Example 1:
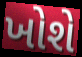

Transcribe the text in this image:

ખોશે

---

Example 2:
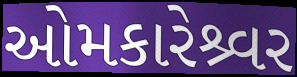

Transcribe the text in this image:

ઓમકારેશ્ર્વર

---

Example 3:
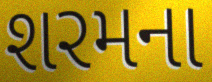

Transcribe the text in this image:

શરમના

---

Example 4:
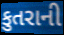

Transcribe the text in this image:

કુતરાની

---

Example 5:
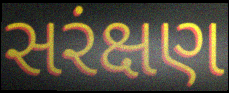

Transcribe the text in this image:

સરંક્ષણ